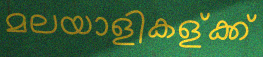
മലയാളികള്ക്ക്